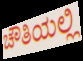
ಚೌತಿಯಲ್ಲಿ